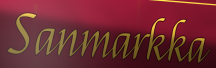
Sanmarkka